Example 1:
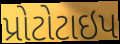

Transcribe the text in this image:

પ્રોટોટાઇપ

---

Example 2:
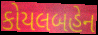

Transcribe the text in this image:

કોયલબહેન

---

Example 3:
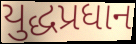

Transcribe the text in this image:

યુદ્ધપ્રધાન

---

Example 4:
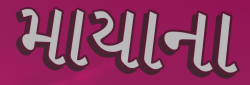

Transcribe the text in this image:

માયાના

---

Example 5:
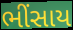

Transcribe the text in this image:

ભીંસાય